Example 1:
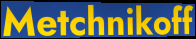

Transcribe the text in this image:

Metchnikoff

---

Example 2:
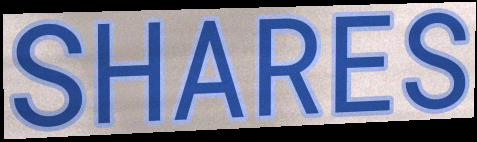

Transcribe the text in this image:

SHARES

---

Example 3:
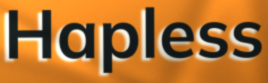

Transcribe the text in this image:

Hapless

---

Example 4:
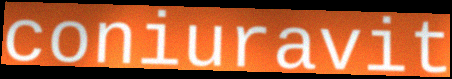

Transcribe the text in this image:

coniuravit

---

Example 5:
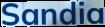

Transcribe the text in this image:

Sandia